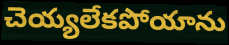
చెయ్యలేకపోయాను